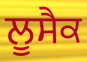
ਲੂਸੈਕ